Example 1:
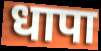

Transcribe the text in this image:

धापा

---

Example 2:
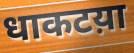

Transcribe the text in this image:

धाकटय़ा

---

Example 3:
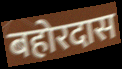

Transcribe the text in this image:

बहोरदास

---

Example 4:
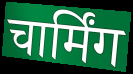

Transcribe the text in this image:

चार्मिंग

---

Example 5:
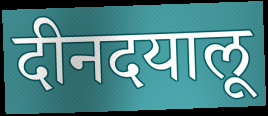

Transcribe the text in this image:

दीनदयालू